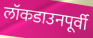
लॉकडाउनपूर्वी